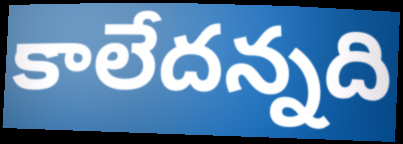
కాలేదన్నది